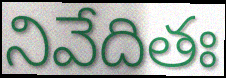
నివేదితః